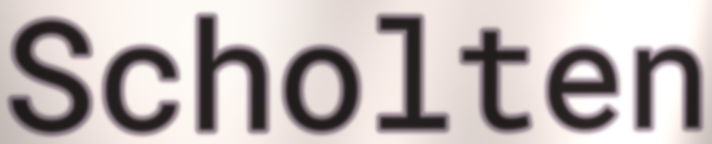
Scholten